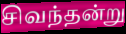
சிவந்தன்று